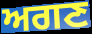
ਅਗਣ